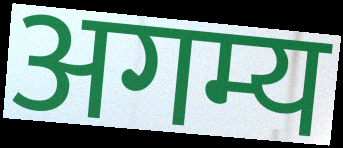
अगम्य